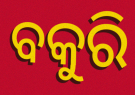
ବକୁରି